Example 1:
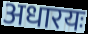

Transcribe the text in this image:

अधारयः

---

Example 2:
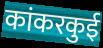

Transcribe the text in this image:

कांकरकुई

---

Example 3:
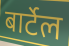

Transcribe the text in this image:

बार्टेल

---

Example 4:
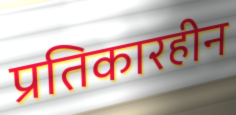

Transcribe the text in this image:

प्रतिकारहीन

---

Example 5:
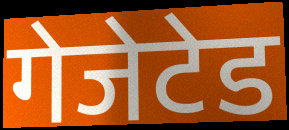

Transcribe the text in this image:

गेजेटेड